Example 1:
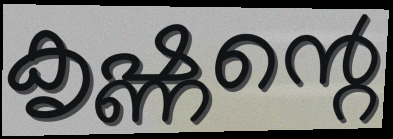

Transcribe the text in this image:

കൃഷ്ണന്റെ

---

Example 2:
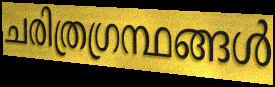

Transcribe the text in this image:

ചരിത്രഗ്രന്ഥങ്ങൾ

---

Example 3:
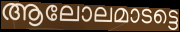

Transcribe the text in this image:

ആലോലമാടട്ടെ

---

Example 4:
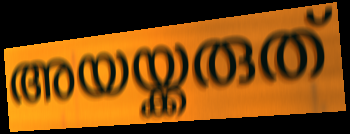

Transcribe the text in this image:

അയയ്ക്കരുത്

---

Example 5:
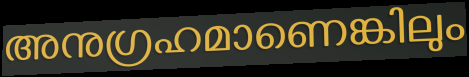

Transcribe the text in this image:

അനുഗ്രഹമാണെങ്കിലും